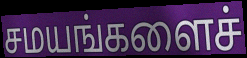
சமயங்களைச்